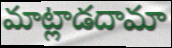
మాట్లాడదామా